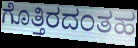
ಗೊತ್ತಿರದಂತಹ